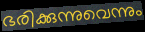
ഭരിക്കുന്നുവെന്നും